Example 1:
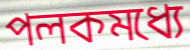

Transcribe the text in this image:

পলকমধ্যে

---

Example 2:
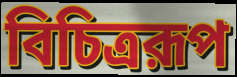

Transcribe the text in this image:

বিচিত্ররূপ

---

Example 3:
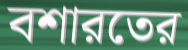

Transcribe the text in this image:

বশারতের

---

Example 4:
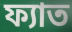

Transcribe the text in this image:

ফ্যাত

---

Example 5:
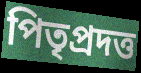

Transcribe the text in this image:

পিতৃপ্রদত্ত